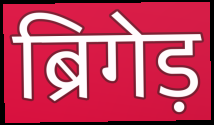
ब्रिगेड़